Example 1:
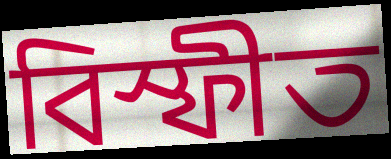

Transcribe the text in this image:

বিস্ফীত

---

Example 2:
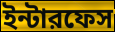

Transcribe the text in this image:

ইন্টারফেস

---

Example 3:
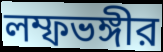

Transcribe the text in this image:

লম্ফভঙ্গীর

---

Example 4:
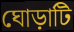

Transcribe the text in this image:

ঘোড়াটি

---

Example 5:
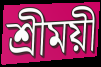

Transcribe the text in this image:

শ্রীময়ী